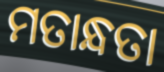
ମତାନ୍ଧତା